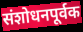
संशोधनपूर्वक